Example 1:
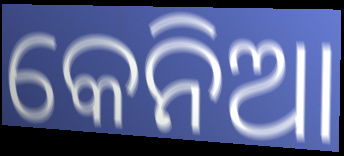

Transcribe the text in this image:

କେନିଆ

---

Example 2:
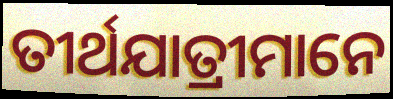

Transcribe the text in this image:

ତୀର୍ଥଯାତ୍ରୀମାନେ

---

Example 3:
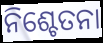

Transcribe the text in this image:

ନିଶ୍ଚେତନା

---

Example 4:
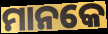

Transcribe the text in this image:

ମାନକେ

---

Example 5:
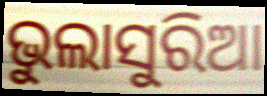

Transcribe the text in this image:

ଭୁଲାସୁରିଆ